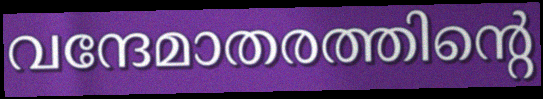
വന്ദേമാതരത്തിന്റെ